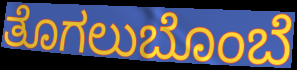
ತೊಗಲುಬೊಂಬೆ